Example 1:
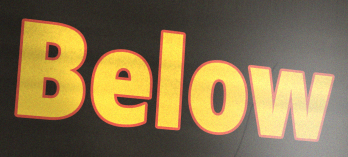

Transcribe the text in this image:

Below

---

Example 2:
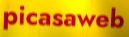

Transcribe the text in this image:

picasaweb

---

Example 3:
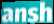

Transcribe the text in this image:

ansh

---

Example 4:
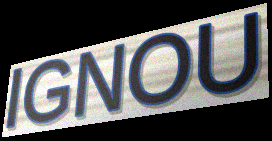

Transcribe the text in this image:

IGNOU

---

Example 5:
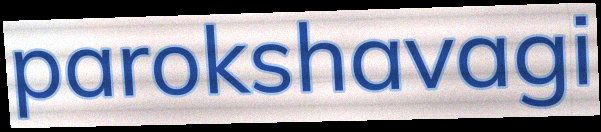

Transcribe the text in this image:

parokshavagi